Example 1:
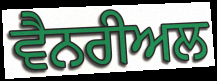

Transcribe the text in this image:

ਵੈਨਰੀਅਲ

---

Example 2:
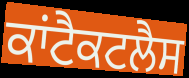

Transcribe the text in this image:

ਕਾਂਟੈਕਟਲੈਸ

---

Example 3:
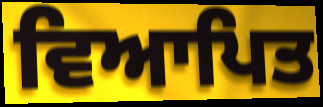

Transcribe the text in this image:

ਵਿਆਪਿਤ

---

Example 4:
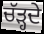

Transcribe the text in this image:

ਚੱੜ੍ਹਦੇ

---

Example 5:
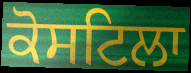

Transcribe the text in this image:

ਕੋਸਟਿਲਾ